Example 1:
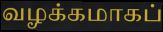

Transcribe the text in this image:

வழக்கமாகப்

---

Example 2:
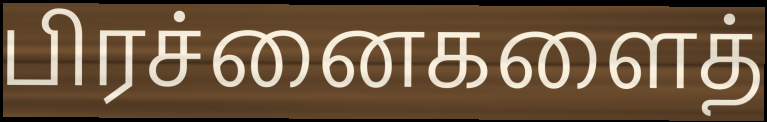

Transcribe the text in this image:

பிரச்னைகளைத்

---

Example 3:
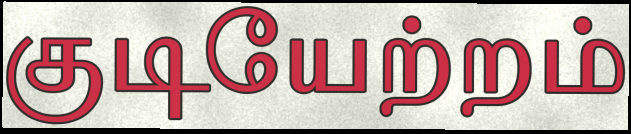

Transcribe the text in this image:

குடியேற்றம்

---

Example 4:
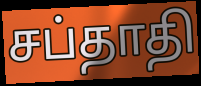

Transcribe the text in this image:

சப்தாதி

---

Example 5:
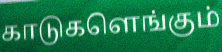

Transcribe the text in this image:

காடுகளெங்கும்